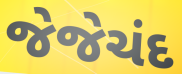
જેજેચંદ